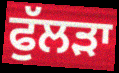
ਫੁੱਲੜਾ